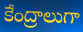
కేంద్రాలుగా